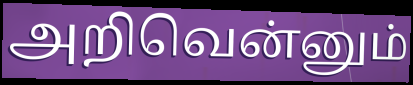
அறிவென்னும்